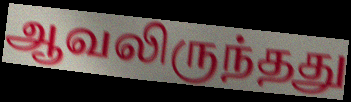
ஆவலிருந்தது